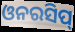
ଓନରସିପ୍